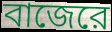
বাজেরে